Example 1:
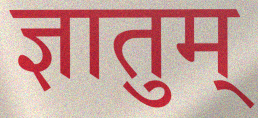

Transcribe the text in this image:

ज्ञातुम्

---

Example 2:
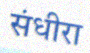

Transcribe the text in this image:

संधीरा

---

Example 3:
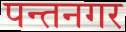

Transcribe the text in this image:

पन्तनगर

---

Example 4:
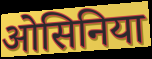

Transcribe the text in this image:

ओसिनिया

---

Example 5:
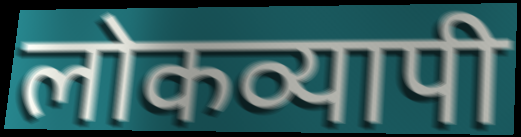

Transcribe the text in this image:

लोकव्यापी